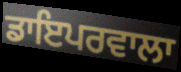
ਡਾਇਪਰਵਾਲਾ